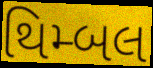
થિમ્બલ